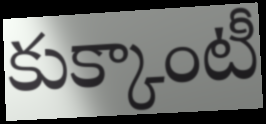
కుక్కాంటీ